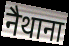
नैथाना